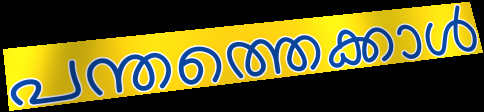
പന്തത്തെക്കാൾ